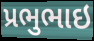
પ્રભુભાઇ